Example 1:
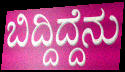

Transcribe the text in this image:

ಬಿದ್ದಿದ್ದೆನು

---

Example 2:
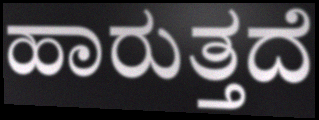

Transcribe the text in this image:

ಹಾರುತ್ತದೆ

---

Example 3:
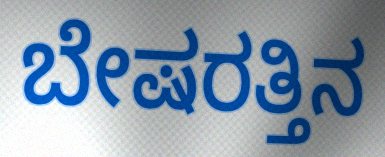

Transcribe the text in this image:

ಬೇಷರತ್ತಿನ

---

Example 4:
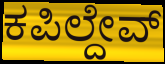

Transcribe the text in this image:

ಕಪಿಲ್ದೇವ್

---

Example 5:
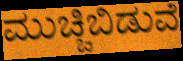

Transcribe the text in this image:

ಮುಚ್ಚಿಬಿಡುವೆ